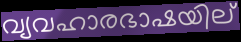
വ്യവഹാരഭാഷയില്